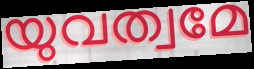
യുവത്വമേ